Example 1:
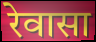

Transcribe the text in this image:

रेवासा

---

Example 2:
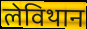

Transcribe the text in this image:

लेविथान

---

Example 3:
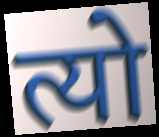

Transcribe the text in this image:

त्यो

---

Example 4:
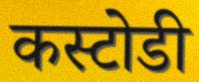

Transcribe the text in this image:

कस्टोडी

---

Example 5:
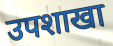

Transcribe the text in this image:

उपशाखा